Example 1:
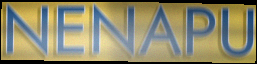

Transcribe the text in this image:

NENAPU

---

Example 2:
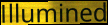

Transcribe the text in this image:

Illumined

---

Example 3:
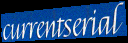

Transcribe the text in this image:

currentserial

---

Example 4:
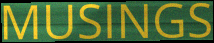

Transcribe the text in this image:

MUSINGS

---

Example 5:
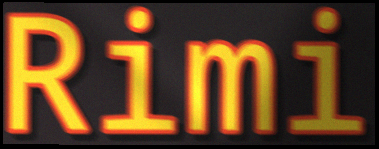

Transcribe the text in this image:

Rimi